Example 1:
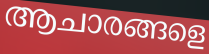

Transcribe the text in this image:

ആചാരങ്ങളെ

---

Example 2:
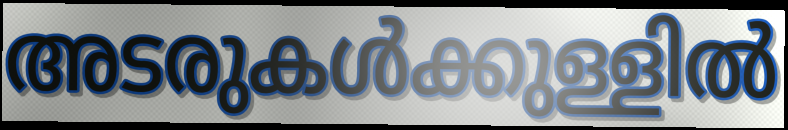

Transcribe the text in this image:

അടരുകൾക്കുള്ളിൽ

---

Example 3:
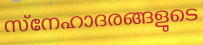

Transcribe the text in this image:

സ്‌നേഹാദരങ്ങളുടെ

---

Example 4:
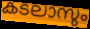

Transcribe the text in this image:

കടലാസും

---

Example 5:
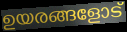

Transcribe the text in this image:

ഉയരങ്ങളോട്